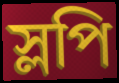
স্লপি